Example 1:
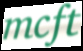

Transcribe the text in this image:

mcft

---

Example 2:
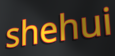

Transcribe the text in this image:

shehui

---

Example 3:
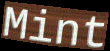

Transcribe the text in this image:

Mint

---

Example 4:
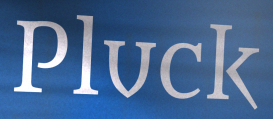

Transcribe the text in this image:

Pluck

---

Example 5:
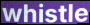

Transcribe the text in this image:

whistle